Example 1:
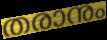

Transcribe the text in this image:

തരാനും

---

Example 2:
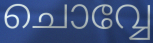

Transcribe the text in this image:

ചൊവ്വേ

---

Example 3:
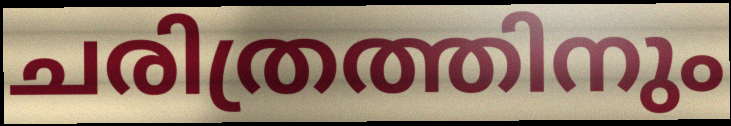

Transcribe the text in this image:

ചരിത്രത്തിനും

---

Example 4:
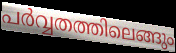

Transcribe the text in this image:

പർവ്വതത്തിലെങ്ങും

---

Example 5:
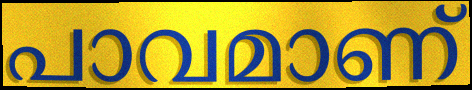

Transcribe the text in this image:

പാവമാണ്